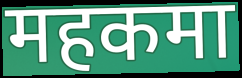
महकमा